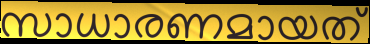
സാധാരണമായത്